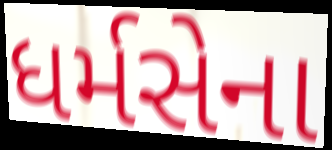
ધર્મસેના